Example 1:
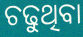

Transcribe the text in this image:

ଚଢୁଥିବା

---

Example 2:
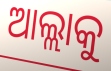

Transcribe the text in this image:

ଆଲ୍ଲାକୁ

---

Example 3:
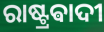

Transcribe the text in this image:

ରାଷ୍ଟ୍ରଵାଦୀ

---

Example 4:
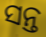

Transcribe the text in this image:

ସନ୍ତ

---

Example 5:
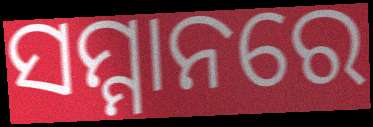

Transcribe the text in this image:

ସମ୍ମାନରେ